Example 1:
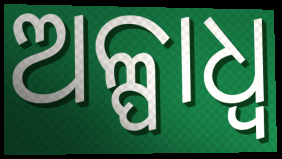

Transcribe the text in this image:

ଅଳ୍ପାଧ୍ଵ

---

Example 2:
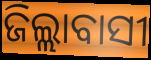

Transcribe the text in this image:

ଜିଲ୍ଲାବାସୀ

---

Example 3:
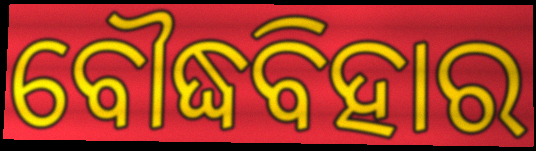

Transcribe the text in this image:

ବୌଦ୍ଧବିହାର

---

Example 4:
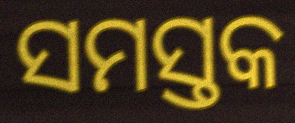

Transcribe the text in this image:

ସମସ୍ତକ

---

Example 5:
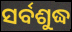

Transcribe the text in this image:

ସର୍ବଶୁଦ୍ଧ